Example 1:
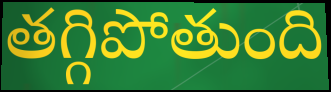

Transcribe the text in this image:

తగ్గిపోతుంది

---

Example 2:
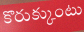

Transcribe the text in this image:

కొరుక్కుంటు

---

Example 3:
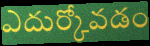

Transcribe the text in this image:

ఎదుర్కోవడం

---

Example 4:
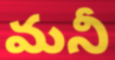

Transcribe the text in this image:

మనీ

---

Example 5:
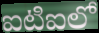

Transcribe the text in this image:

ఐటిఐలో